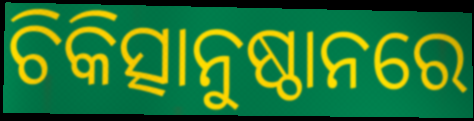
ଚିକିତ୍ସାନୁଷ୍ଠାନରେ